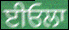
ਈਓਲਾ